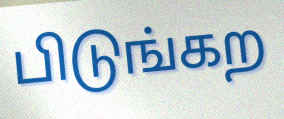
பிடுங்கற